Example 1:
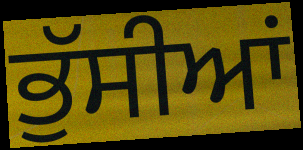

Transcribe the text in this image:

ਭੁੱਸੀਆਂ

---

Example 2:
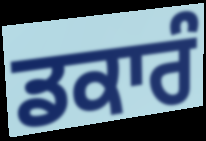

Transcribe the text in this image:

ਡਕਾਰੰ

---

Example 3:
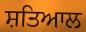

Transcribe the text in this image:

ਸ਼ਤਿਆਲ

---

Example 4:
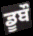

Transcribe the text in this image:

ਡੂਬੌ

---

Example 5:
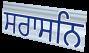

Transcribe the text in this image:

ਸਰਾਸਨਿ